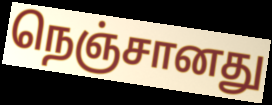
நெஞ்சானது